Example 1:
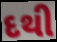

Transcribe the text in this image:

દથી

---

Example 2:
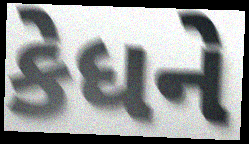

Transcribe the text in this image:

કેધને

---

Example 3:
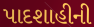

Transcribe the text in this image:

પાદશાહીની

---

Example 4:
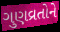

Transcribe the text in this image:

ગુણવ્રતોને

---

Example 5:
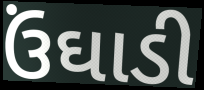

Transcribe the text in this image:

ઉંઘાડી